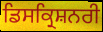
ਡਿਸਕ੍ਰਿਸ਼ਨਰੀ